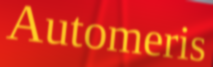
Automeris